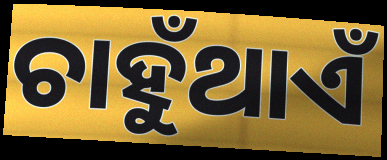
ଚାହୁଁଥାଏଁ